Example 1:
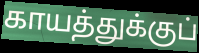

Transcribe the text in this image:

காயத்துக்குப்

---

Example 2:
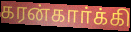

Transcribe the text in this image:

கரன்கார்க்கி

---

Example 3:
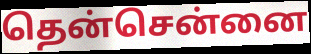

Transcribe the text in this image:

தென்சென்னை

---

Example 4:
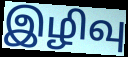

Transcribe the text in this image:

இழிவு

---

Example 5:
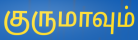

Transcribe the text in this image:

குருமாவும்